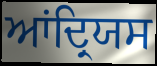
ਆਂਦ੍ਰਿਯਸ